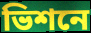
ভিশনে